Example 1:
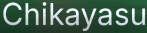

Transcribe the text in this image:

Chikayasu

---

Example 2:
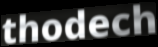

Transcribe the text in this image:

thodech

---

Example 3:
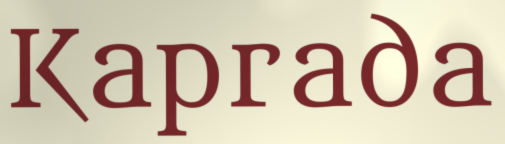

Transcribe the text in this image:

Kaprada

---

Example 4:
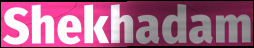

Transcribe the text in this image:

Shekhadam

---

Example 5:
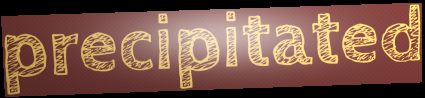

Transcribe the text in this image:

precipitated